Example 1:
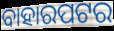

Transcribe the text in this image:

ବାହାରପଟର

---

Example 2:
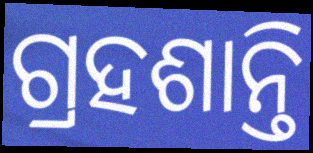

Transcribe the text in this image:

ଗ୍ରହଶାନ୍ତି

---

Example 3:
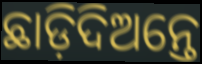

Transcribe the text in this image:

ଛାଡ଼ିଦିଅନ୍ତେ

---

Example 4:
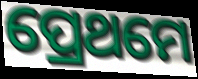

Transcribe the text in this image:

ପ୍ରେଥମେ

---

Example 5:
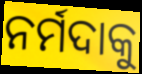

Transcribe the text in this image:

ନର୍ମଦାକୁ